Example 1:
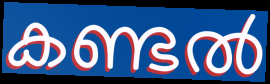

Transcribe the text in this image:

കണ്ടൽ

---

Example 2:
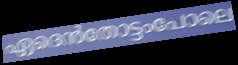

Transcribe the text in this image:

ഏദെൻതോട്ടംപോലെ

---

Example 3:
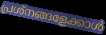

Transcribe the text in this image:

പ്രശ്നങ്ങളേക്കാൾ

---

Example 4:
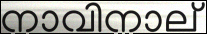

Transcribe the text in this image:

നാവിനാല്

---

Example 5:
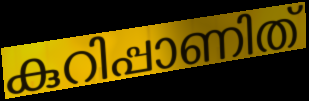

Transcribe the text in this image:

കുറിപ്പാണിത്